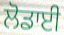
ਲੋਡਾਈ